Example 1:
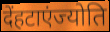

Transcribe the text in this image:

देंहटाएंज्योति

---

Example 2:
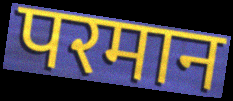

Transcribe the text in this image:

परमान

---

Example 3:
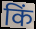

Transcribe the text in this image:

किं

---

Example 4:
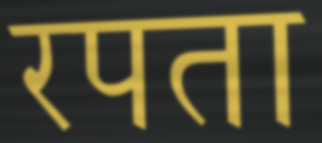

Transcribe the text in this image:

रपता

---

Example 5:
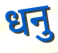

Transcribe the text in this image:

धनु